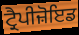
ਟ੍ਰੈਪੀਜ਼ੋਇਡ